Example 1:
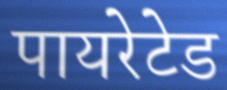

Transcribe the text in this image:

पायरेटेड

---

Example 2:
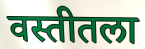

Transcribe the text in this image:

वस्तीतला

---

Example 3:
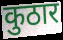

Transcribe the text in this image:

कुठार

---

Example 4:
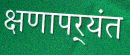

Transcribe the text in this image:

क्षणापर्यंत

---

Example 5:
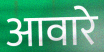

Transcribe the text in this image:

आवारे